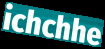
ichchhe